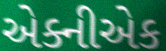
એક્નીએક